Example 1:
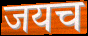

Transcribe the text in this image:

जयच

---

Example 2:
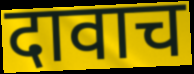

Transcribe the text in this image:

दावाच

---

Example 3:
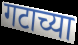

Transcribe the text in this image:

गटाच्या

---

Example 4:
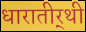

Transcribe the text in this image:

धारातीर्थी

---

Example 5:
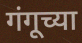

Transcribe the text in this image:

गंगूच्या